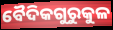
ବୈଦିକଗୁରୁକୁଳ